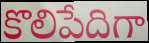
కొలిపేదిగా